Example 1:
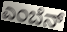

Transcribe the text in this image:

ಎಂಬೆನ್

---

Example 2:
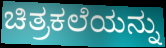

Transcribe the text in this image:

ಚಿತ್ರಕಲೆಯನ್ನು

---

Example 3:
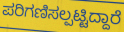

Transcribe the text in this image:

ಪರಿಗಣಿಸಲ್ಪಟ್ಟಿದ್ದಾರೆ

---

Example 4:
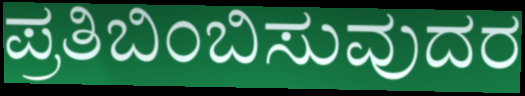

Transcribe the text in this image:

ಪ್ರತಿಬಿಂಬಿಸುವುದರ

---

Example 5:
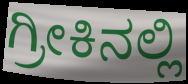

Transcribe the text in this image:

ಗ್ರೀಕಿನಲ್ಲಿ